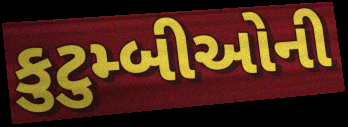
કુટુમ્બીઓની